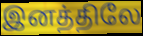
இனத்திலே